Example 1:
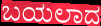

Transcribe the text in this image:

ಬಯಲಾದ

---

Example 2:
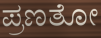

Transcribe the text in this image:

ಪ್ರಣತೋ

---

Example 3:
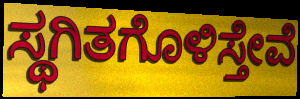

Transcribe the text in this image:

ಸ್ಥಗಿತಗೊಳಿಸ್ತೇವೆ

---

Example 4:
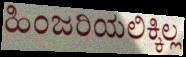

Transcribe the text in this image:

ಹಿಂಜರಿಯಲಿಕ್ಕಿಲ್ಲ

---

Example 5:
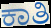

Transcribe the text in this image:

ಕಾತಿ